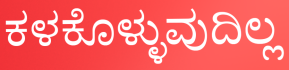
ಕಳಕೊಳ್ಳುವುದಿಲ್ಲ